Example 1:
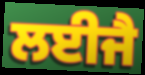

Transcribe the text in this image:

ਲਈਜੈ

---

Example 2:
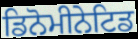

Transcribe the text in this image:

ਡਿਨੋਮੀਨੇਟਿਡ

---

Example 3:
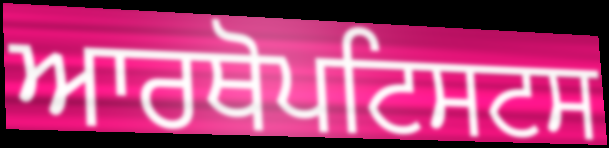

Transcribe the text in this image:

ਆਰਥੋਪਟਿਸਟਸ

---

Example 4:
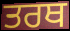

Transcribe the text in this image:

ਤਰਥ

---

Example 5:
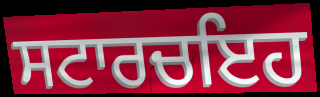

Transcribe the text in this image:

ਸਟਾਰਚਇਹ